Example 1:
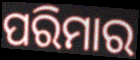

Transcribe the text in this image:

ପରିମାର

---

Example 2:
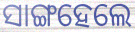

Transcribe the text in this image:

ସାଙ୍ଗହେଲେ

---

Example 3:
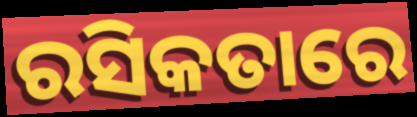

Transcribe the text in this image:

ରସିକତାରେ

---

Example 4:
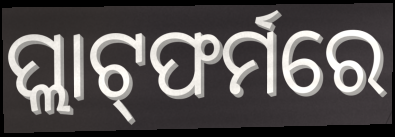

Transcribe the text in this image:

ପ୍ଲାଟ୍‌ଫର୍ମରେ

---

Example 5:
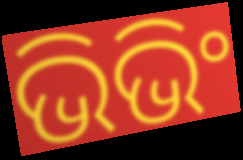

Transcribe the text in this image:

ଭିଭିଂ